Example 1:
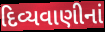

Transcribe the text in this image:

દિવ્યવાણીનાં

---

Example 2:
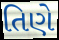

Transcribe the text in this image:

તિણે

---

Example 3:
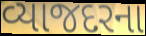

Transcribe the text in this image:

વ્યાજદરના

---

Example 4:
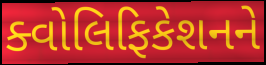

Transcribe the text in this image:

ક્વોલિફિકેશનને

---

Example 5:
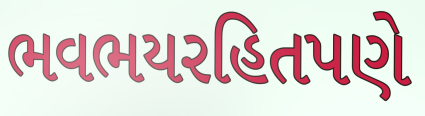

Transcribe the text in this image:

ભવભયરહિતપણે